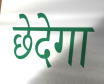
छेदेगा